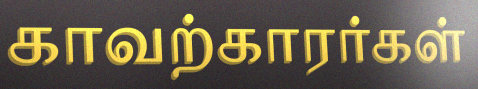
காவற்காரர்கள்